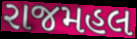
રાજમહલ